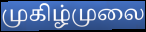
முகிழ்முலை